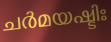
ചർമയഷ്ടിഃ